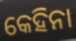
କେହିନା